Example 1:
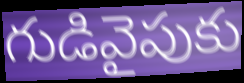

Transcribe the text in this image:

గుడివైపుకు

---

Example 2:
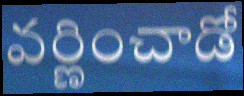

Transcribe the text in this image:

వర్ణించాడో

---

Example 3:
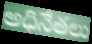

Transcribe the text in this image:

అధినేతలు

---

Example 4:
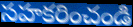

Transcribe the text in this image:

సహకరించండి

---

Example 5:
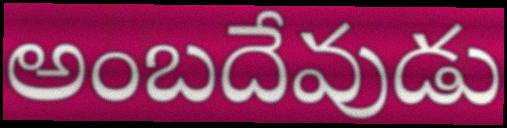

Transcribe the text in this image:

అంబదేవుడు